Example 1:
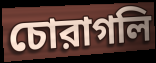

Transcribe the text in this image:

চোরাগলি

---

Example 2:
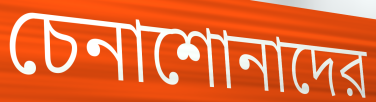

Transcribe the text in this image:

চেনাশোনাদের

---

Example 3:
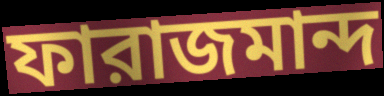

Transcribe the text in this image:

ফারাজমান্দ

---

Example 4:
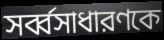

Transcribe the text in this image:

সর্ব্বসাধারণকে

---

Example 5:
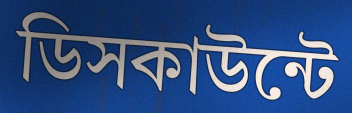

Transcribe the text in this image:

ডিসকাউন্টে